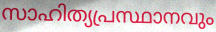
സാഹിത്യപ്രസ്ഥാനവും